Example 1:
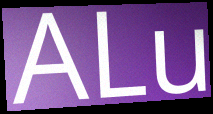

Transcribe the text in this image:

ALu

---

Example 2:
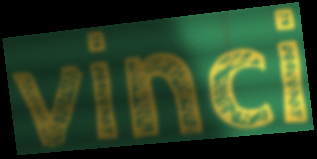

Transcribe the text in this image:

vinci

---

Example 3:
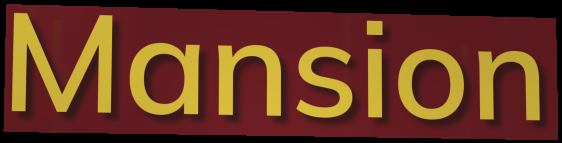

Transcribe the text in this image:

Mansion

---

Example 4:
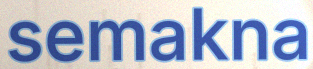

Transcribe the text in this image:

semakna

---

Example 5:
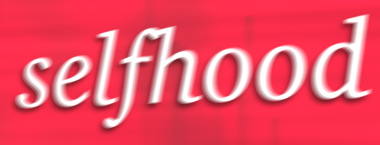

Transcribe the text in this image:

selfhood